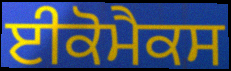
ਈਕੋਮੈਕਸ